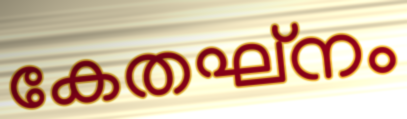
കേതഘ്നം